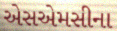
એસએમસીના